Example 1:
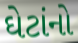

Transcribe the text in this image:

ઘેટાંનો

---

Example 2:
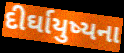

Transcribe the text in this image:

દીર્ઘાયુષ્યના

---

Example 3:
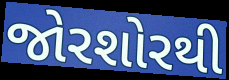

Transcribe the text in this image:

જોરશોરથી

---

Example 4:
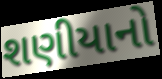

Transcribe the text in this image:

શણીયાનો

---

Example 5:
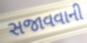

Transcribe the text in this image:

સજાવવાની